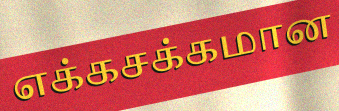
எக்கசக்கமான